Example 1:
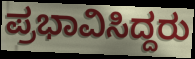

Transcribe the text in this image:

ಪ್ರಭಾವಿಸಿದ್ದರು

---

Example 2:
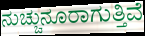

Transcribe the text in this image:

ನುಚ್ಚುನೂರಾಗುತ್ತಿವೆ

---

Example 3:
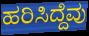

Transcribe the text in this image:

ಹರಿಸಿದ್ದೆವು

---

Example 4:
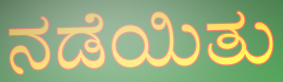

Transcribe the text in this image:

ನಡೆಯಿತು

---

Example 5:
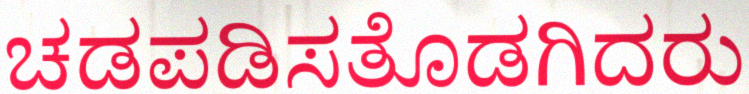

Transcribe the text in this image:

ಚಡಪಡಿಸತೊಡಗಿದರು